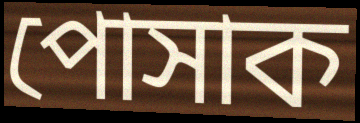
পোসাক